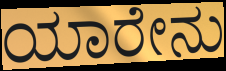
ಯಾರೇನು